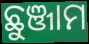
ଛୁଞ୍ଜାମ